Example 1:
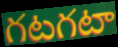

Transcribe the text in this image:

గటగటా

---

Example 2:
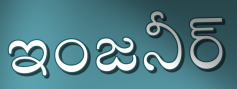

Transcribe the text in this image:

ఇంజనీర్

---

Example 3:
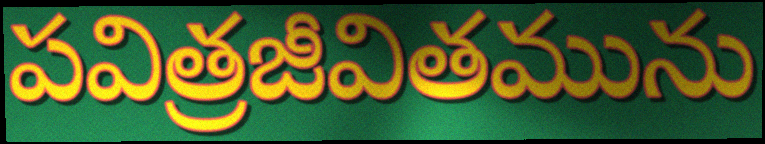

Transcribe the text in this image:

పవిత్రజీవితమును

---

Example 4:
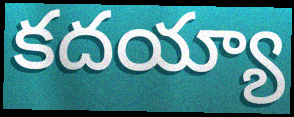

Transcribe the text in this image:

కదయ్యా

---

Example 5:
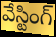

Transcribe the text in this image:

వేస్టింగ్